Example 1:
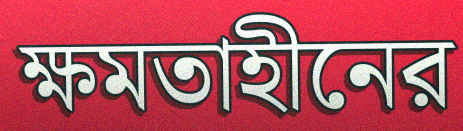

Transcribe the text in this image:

ক্ষমতাহীনের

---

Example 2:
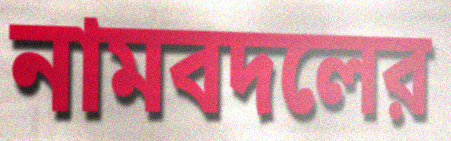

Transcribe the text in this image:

নামবদলের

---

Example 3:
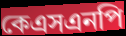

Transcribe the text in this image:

কেএসএনপি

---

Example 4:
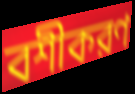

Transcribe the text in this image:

বশীকরণ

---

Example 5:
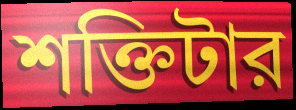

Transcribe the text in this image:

শক্তিটার